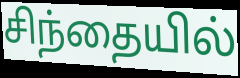
சிந்தையில்